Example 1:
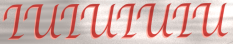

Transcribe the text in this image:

IUIUIUIU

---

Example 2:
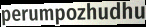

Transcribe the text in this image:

perumpozhudhu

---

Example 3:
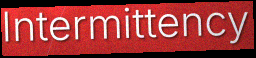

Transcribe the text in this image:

Intermittency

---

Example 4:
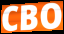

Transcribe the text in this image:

CBO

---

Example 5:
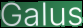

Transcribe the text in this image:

Galus